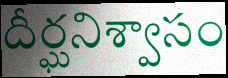
దీర్ఘనిశ్వాసం